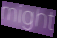
might